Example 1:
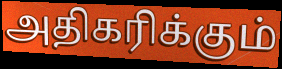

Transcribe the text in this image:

அதிகரிக்கும்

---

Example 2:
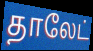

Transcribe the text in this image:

தாலேட்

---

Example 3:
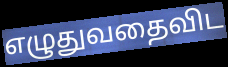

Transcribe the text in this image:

எழுதுவதைவிட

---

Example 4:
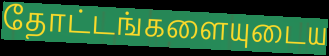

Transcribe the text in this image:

தோட்டங்களையுடைய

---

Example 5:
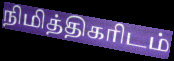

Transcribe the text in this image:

நிமித்திகரிடம்